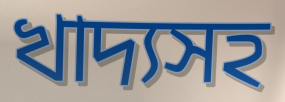
খাদ্যসহ